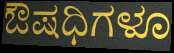
ಔಷಧಿಗಳೂ